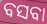
ବସବା